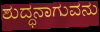
ಶುದ್ಧನಾಗುವನು